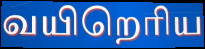
வயிறெரிய